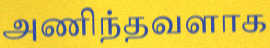
அணிந்தவளாக